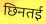
छिनतई